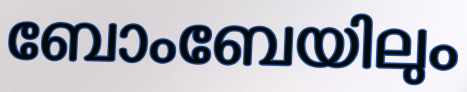
ബോംബേയിലും